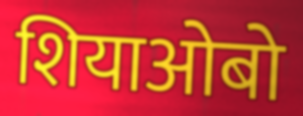
शियाओबो